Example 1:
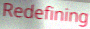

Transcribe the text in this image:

Redefining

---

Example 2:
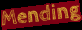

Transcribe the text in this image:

Mending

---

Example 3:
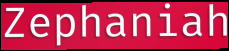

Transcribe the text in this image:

Zephaniah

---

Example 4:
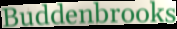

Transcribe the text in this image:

Buddenbrooks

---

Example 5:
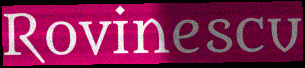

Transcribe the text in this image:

Rovinescu